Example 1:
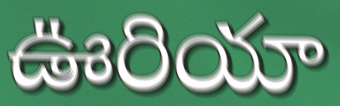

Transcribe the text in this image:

ఊరియా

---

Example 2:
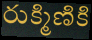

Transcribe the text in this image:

రుక్మిణికి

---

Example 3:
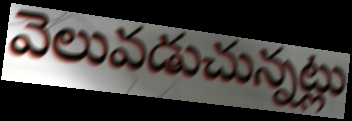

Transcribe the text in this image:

వెలువడుచున్నట్లు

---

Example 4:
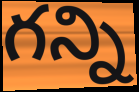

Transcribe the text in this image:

గన్ని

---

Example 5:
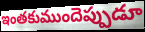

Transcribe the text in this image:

ఇంతకుముందెప్పుడూ